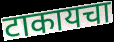
टाकायचा